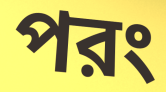
পরং